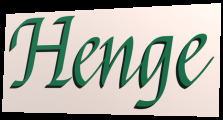
Henge